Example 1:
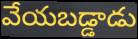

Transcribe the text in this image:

వేయబడ్డాడు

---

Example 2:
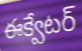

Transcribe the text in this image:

ఈక్వేటర్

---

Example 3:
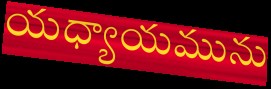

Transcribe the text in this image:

యధ్యాయమును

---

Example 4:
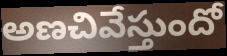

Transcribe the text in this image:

అణచివేస్తుందో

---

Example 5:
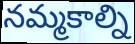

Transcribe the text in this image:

నమ్మకాల్ని